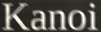
Kanoi